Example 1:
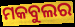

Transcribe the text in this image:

ମକବୁଲର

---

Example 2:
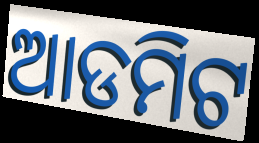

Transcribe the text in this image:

ଆଡମିଟ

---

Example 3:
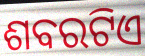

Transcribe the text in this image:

ଶବରଟିଏ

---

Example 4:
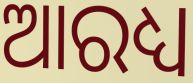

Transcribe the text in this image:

ଆରଧ୍ୟ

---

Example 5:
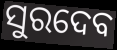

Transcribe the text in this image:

ସୁରଦେବ